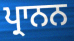
ਪ੍ਰਾਨਨ